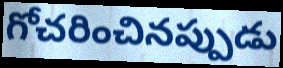
గోచరించినప్పుడు